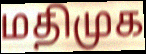
மதிமுக